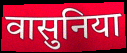
वासुनिया